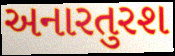
અનારતુરશ